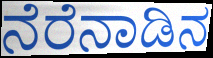
ನೆರೆನಾಡಿನ